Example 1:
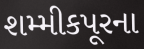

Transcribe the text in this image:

શમ્મીકપૂરના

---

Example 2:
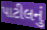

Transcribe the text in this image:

પાટીલનું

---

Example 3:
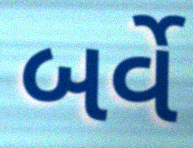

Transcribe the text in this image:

બર્વે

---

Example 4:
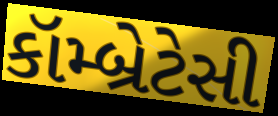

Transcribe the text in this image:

કૉમ્બ્રેટેસી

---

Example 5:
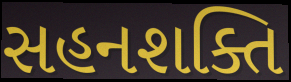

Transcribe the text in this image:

સહનશક્તિ